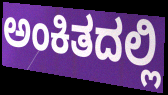
ಅಂಕಿತದಲ್ಲಿ